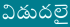
విడుదలై